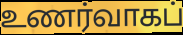
உணர்வாகப்